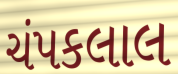
ચંપકલાલ